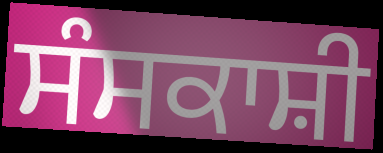
ਸੰਸਕਾਸ਼ੀ